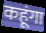
कहूंगा